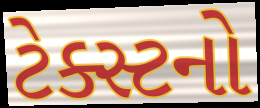
ટેક્સ્ટનો